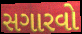
સગારવો